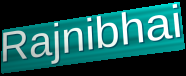
Rajnibhai